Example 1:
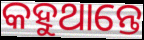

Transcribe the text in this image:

କହୁଥାନ୍ତେ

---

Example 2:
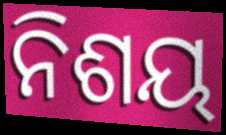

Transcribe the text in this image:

ନିଶୟ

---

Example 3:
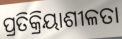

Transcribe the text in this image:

ପ୍ରତିକ୍ରିୟାଶୀଳତା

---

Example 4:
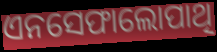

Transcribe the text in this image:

ଏନସେଫାଲୋପାଥି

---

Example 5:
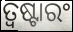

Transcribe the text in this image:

ତ୍ୱଷ୍ଟାରଂ